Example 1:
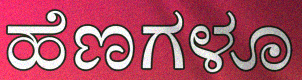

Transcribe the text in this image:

ಹೆಣಗಳೂ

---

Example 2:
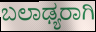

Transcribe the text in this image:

ಬಲಾಢ್ಯರಾಗಿ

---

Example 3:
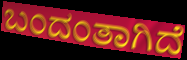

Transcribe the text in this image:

ಬಂದಂತಾಗಿದೆ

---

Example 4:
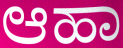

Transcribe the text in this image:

ಆಹಾ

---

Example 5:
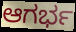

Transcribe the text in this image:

ಆಗರ್ಭ